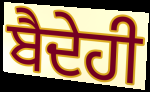
ਬੈਦੇਹੀ